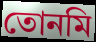
তোনমি